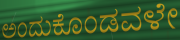
ಅಂದುಕೊಂಡವಳೇ